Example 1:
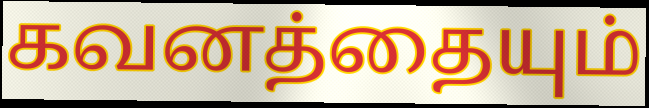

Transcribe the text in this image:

கவனத்தையும்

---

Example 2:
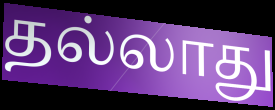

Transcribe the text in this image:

தல்லாது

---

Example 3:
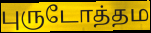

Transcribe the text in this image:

புருடோத்தம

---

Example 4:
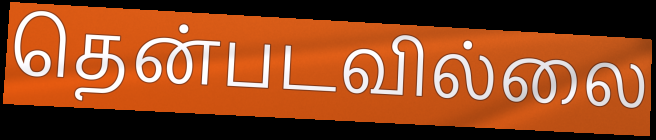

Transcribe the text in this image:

தென்படவில்லை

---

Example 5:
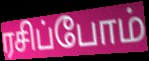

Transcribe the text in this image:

ரசிப்போம்